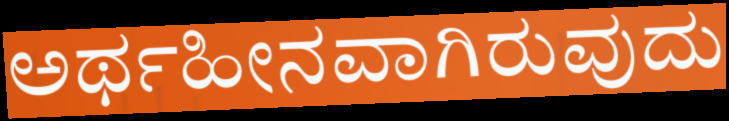
ಅರ್ಥಹೀನವಾಗಿರುವುದು